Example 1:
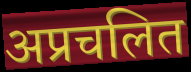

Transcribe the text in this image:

अप्रचलित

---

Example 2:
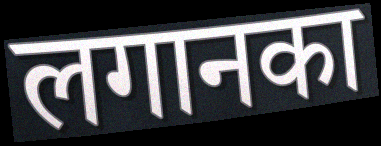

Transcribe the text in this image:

लगानका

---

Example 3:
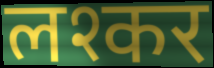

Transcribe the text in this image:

लश्कर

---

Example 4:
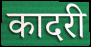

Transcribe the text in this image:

कादरी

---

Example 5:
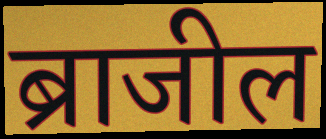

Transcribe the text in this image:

ब्राजील